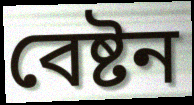
বেষ্টন